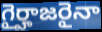
గైర్హాజరైనా